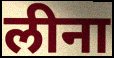
लीना